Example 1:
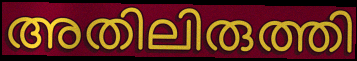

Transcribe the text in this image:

അതിലിരുത്തി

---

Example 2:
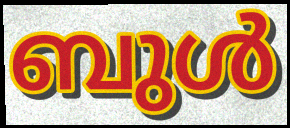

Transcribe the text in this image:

ബുൾ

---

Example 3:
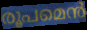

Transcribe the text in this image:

രൂപമെൻ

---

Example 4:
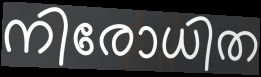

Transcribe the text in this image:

നിരോധിത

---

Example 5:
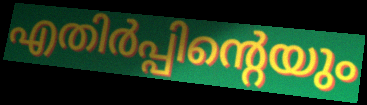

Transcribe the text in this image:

എതിർപ്പിന്റെയും